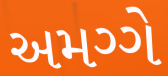
અમગ્ગે